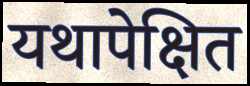
यथापेक्षित